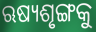
ଋଷ୍ୟଶୃଙ୍ଗକୁ